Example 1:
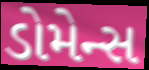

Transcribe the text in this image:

ડોમેન્સ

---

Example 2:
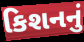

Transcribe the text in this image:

કિશનનું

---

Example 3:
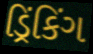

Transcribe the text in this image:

ડ્રિંકિંગ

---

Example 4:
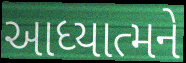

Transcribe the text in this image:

આધ્યાત્મને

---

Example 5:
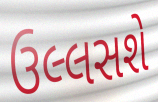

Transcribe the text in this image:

ઉલ્લસશે